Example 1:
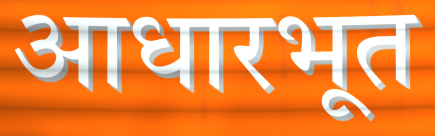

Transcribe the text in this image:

आधारभूत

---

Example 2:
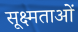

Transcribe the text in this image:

सूक्ष्मताओं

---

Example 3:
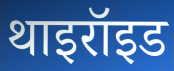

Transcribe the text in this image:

थाइरॉइड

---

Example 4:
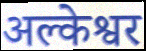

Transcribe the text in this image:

अल्केश्वर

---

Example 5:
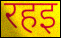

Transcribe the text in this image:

रहइ